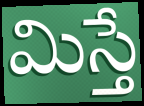
మిస్తే